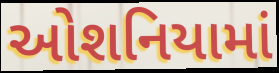
ઓશનિયામાં